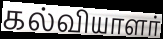
கல்வியாளர்